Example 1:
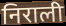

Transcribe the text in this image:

निराली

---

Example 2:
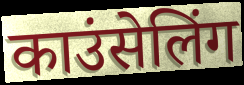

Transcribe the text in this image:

काउंसेलिंग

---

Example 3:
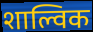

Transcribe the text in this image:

शाल्विक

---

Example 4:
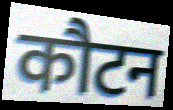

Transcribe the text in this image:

कौटन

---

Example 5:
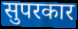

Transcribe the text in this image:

सुपरकार